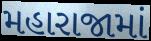
મહારાજામાં